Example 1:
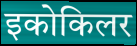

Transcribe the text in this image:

इकोकिलर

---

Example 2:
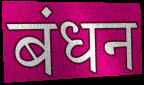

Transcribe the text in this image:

बंधन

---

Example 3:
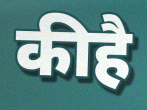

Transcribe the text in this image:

कीहै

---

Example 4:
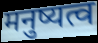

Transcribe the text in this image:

मनुष्यत्‍व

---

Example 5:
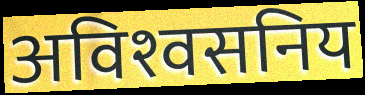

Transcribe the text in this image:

अविश्वसनिय